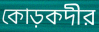
কোড়কদীর